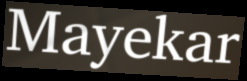
Mayekar